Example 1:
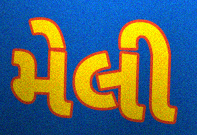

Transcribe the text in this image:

મેલી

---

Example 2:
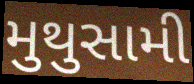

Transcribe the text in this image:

મુથુસામી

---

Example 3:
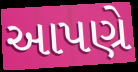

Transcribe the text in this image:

આપણ્રે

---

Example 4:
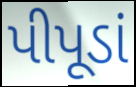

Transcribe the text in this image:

પીપૂડાં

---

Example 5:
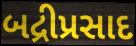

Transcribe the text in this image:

બદ્રીપ્રસાદ